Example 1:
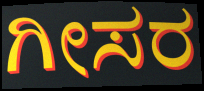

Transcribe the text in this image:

ಗೀಸರ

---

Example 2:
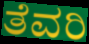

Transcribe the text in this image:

ತೆವರಿ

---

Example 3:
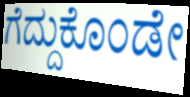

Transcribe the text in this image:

ಗೆದ್ದುಕೊಂಡೇ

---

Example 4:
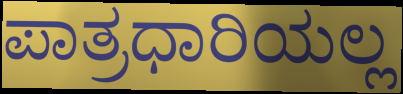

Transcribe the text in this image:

ಪಾತ್ರಧಾರಿಯಲ್ಲ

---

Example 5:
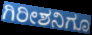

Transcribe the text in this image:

ಗಿರೀಶನಿಗೂ